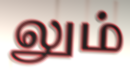
லும்